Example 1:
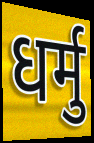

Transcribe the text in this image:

धर्मु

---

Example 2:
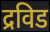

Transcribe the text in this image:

द्रविड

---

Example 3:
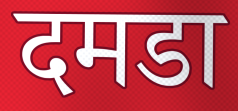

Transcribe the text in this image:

दमडा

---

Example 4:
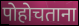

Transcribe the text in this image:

पोहोचताना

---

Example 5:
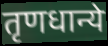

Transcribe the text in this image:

तृणधान्ये